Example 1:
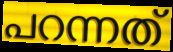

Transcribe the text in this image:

പറന്നത്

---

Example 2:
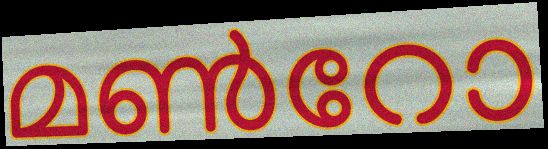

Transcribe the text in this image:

മൺറോ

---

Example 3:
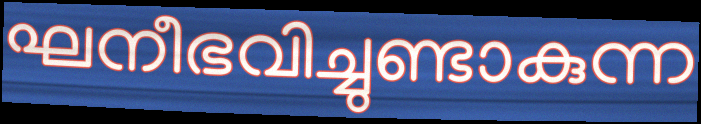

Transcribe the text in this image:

ഘനീഭവിച്ചുണ്ടാകുന്ന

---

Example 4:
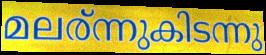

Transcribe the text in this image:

മലര്ന്നുകിടന്നു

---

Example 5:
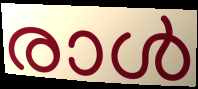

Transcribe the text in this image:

രാൾ